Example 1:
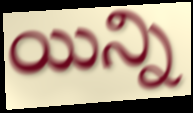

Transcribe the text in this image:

యిన్ని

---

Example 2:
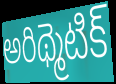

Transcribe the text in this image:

అరిథ్మెటిక్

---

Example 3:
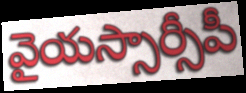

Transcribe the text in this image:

వైయస్సార్సీపీ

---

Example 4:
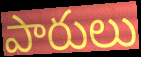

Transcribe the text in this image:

పారులు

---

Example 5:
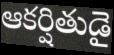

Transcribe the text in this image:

ఆకర్షితుడై